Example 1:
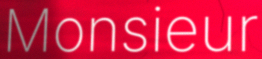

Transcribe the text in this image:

Monsieur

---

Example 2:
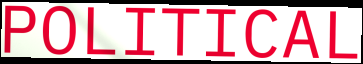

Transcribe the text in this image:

POLITICAL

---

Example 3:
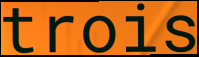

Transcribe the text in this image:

trois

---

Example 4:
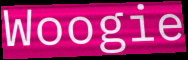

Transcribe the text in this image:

Woogie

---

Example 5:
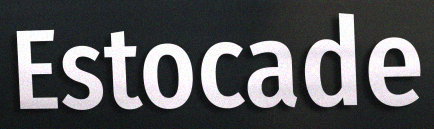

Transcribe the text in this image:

Estocade